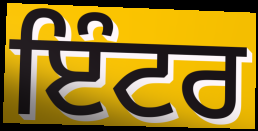
ਇੰਟਰ